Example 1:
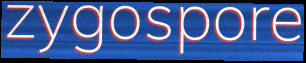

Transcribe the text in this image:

zygospore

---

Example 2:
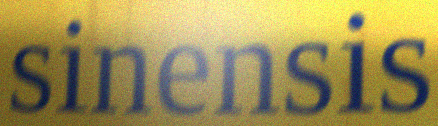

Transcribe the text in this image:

sinensis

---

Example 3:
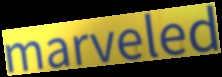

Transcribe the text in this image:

marveled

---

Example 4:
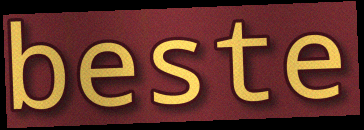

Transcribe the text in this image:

beste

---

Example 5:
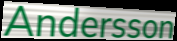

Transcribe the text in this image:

Andersson